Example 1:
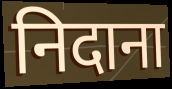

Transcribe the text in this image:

निदाना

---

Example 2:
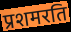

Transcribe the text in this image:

प्रशमरति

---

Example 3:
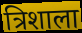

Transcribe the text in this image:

त्रिशाला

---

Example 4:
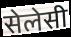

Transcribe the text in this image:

सेलेसी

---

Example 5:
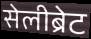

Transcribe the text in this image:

सेलीब्रेट